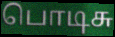
பொடிசு